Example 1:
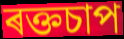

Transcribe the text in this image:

ৰক্তচাপ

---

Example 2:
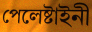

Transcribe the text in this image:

পেলেষ্টাইনী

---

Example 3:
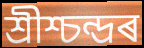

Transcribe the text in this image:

শ্ৰীশ্চন্দ্ৰৰ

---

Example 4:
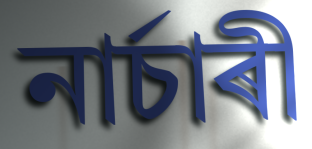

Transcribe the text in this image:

নাৰ্চাৰী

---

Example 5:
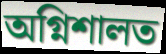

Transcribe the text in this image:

অগ্নিশালত